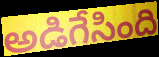
అడిగేసింది